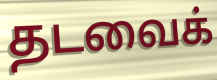
தடவைக்